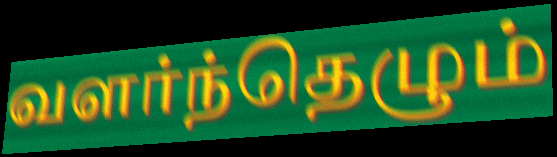
வளர்ந்தெழும்